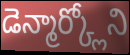
డెన్మార్క్లోని